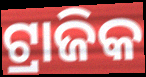
ଟ୍ରାଜିକ